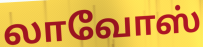
லாவோஸ்